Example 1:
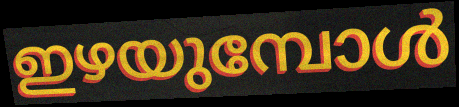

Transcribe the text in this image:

ഇഴയുമ്പോൾ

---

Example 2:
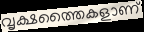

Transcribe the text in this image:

വൃക്ഷത്തൈകളാണ്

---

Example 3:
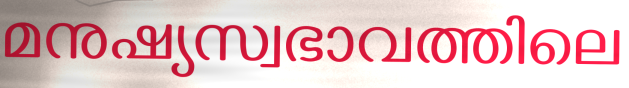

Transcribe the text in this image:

മനുഷ്യസ്വഭാവത്തിലെ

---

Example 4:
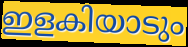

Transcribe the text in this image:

ഇളകിയാടും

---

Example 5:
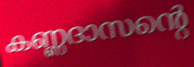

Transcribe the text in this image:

കണ്ണദാസന്റെ